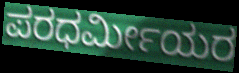
ಪರಧರ್ಮೀಯರ